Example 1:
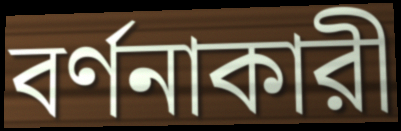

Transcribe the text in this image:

বর্ণনাকারী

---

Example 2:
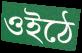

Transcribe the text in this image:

ওইঠে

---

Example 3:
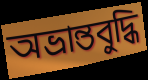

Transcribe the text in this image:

অভ্রান্তবুদ্ধি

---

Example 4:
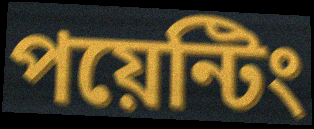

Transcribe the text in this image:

পয়েন্টিং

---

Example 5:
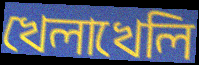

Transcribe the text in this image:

খেলাখেলি